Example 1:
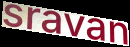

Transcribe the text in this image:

sravan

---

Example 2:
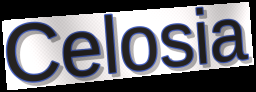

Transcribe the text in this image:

Celosia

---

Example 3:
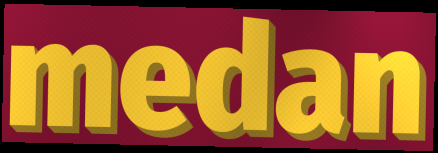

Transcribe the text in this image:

medan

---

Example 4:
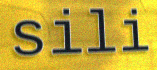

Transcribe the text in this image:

sili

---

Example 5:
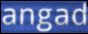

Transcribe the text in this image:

angad